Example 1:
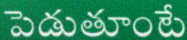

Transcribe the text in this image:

పెడుతూంటే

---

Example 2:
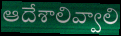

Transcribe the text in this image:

ఆదేశాలివ్వాలి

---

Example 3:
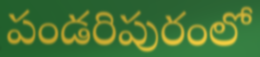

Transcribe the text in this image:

పండరిపురంలో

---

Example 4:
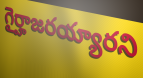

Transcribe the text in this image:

గైర్హాజరయ్యారని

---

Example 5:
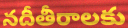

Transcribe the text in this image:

నదీతీరాలకు